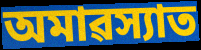
অমাৱস্যাত